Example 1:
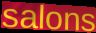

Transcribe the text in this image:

salons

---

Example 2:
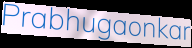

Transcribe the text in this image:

Prabhugaonkar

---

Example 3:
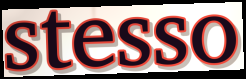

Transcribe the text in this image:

stesso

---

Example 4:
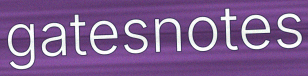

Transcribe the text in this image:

gatesnotes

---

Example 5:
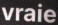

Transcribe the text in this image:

vraie